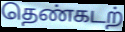
தெண்கடற்